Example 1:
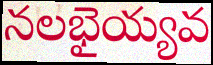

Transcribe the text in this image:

నలభైయ్యవ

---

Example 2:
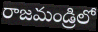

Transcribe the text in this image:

రాజమండ్రిలో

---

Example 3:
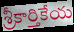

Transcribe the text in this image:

శ్రీకార్తికేయ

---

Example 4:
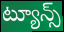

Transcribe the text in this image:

ట్యూన్స్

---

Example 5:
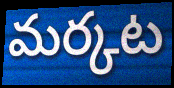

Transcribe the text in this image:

మర్కట